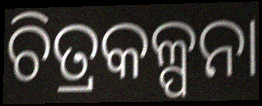
ଚିତ୍ରକଳ୍ପନା